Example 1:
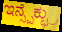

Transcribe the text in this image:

ಇನ್ಸ್ಪೆಕ್ಟ್ರು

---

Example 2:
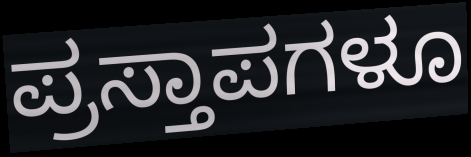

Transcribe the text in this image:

ಪ್ರಸ್ತಾಪಗಳೂ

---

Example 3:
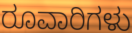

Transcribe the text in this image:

ರೂವಾರಿಗಳು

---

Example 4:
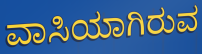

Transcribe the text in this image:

ವಾಸಿಯಾಗಿರುವ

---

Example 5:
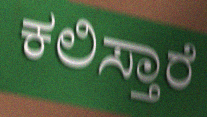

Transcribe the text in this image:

ಕಲಿಸ್ತಾರೆ